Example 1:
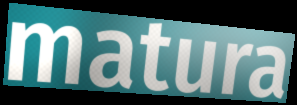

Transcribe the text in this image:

matura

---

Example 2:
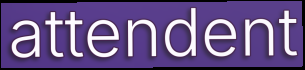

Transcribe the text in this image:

attendent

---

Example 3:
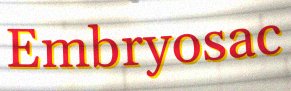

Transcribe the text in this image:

Embryosac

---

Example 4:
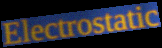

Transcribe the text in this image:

Electrostatic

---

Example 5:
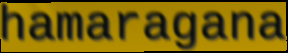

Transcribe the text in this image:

hamaragana